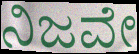
ನಿಜವೇ